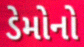
ડેમોનો